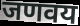
जणवय